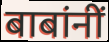
बाबांनीं